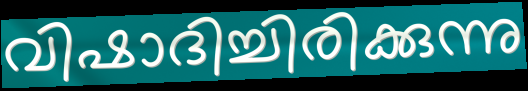
വിഷാദിച്ചിരിക്കുന്നു